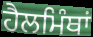
ਹੈਲਮਿੰਥਾਂ